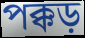
পক্কড়